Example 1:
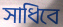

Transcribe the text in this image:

সাধিবে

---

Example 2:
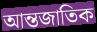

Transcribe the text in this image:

আন্তজাতিক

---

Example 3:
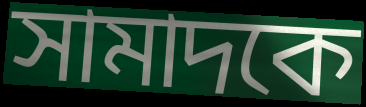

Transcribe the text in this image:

সামাদকে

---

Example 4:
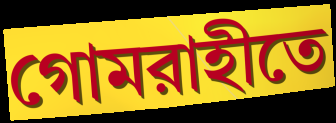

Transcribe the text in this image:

গোমরাহীতে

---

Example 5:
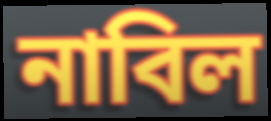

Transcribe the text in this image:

নাবিল